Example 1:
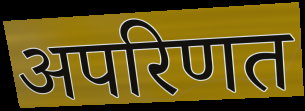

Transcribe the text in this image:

अपरिणत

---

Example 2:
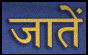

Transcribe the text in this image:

जातें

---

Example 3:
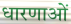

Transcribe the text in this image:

धारणाओं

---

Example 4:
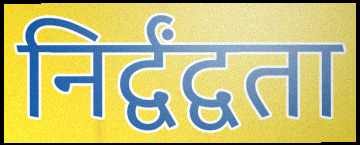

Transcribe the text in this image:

निर्द्वंद्वता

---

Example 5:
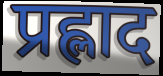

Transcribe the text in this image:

प्रह्लाद